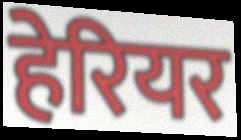
हेरियर